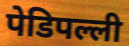
पेडिपल्ली